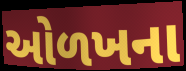
ઓળખના